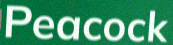
Peacock